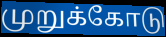
முறுக்கோடு